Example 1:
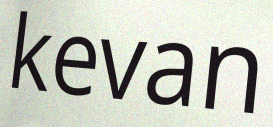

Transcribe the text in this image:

kevan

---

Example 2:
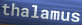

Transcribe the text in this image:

thalamus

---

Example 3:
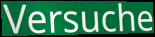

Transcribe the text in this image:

Versuche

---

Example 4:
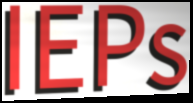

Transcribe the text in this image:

IEPs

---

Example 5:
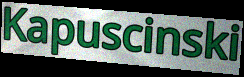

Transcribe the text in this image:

Kapuscinski